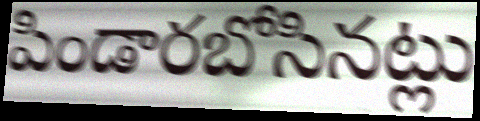
పిండారబోసినట్లు